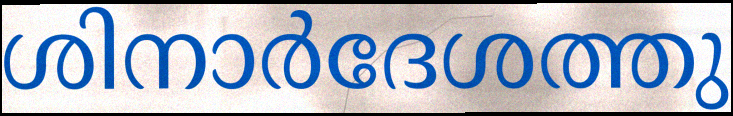
ശിനാർദേശത്തു